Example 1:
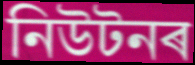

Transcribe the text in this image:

নিউটনৰ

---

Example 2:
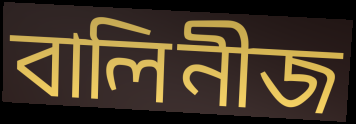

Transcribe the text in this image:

বালিনীজ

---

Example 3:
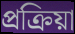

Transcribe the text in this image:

প্ৰক্ৰিয়া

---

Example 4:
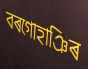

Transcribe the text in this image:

বৰগোহাঞিৰ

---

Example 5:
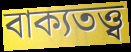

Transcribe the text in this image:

বাক্যতত্ত্ব